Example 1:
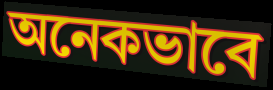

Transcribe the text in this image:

অনেকভাবে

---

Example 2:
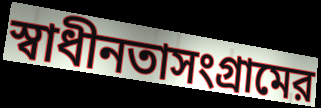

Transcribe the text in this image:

স্বাধীনতাসংগ্রামের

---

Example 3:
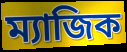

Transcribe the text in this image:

ম্যাজিক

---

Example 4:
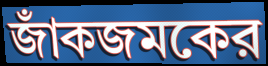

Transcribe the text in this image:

জাঁকজমকের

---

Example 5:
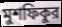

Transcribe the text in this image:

মুশফিকুর